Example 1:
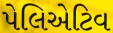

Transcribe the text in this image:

પેલિએટિવ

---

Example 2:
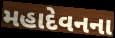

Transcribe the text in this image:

મહાદેવનના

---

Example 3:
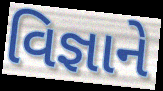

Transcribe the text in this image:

વિજ્ઞાને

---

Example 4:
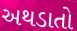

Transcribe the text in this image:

અથડાતો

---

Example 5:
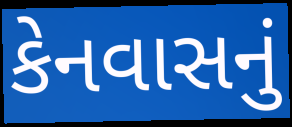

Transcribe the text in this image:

કેનવાસનું